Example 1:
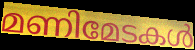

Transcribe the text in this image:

മണിമേടകൾ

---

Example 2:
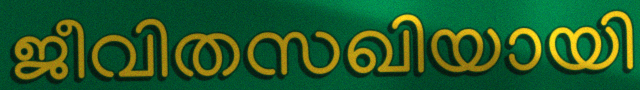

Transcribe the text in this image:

ജീവിതസഖിയായി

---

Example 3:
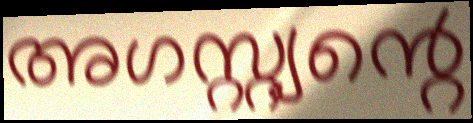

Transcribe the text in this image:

അഗസ്റ്റ്യന്റെ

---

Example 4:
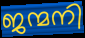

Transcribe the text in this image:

ജന്മനി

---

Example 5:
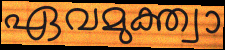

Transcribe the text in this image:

ഏവമുക്ത്വാ